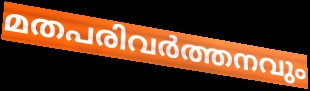
മതപരിവർത്തനവും